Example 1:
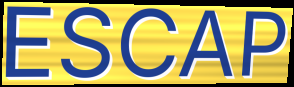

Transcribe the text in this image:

ESCAP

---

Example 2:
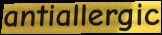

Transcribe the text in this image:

antiallergic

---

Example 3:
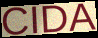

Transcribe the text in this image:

CIDA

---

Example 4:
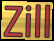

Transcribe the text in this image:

Zill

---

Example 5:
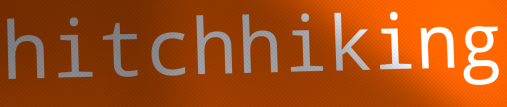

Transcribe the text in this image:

hitchhiking